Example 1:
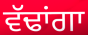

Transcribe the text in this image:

ਵੱਢਾਂਗਾ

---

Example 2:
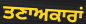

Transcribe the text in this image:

ਤਣਾਅਕਾਰਾਂ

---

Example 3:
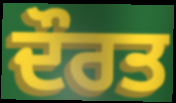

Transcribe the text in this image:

ਦੌਰਤ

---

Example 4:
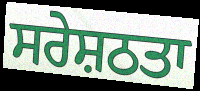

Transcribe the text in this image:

ਸਰੇਸ਼ਠਤਾ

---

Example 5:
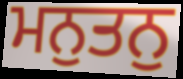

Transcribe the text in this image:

ਮਨੁਤਨੁ